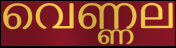
വെണ്ണല